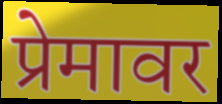
प्रेमावर